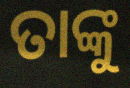
ତାଙ୍କୁ